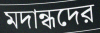
মদান্ধদের